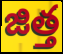
జిత్త